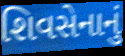
શિવસેનાનું